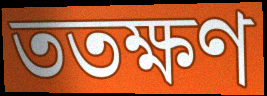
ততক্ষণ